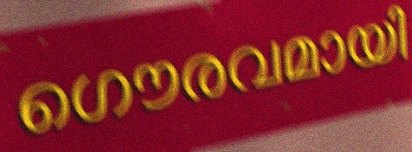
ഗൌരവമായി